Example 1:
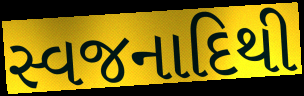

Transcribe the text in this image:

સ્વજનાદિથી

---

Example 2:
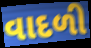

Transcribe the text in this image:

વાદળી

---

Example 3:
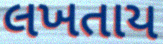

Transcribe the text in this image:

લખતાય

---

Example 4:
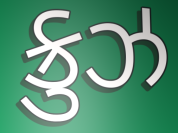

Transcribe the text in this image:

ક્રુઝ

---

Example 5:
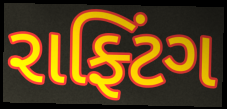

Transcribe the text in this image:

રાફ્ટિંગ